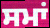
ਸਮਾਂ